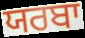
ਯਰਬਾ